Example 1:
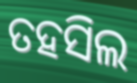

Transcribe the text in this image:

ତହସିଲ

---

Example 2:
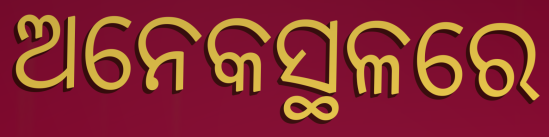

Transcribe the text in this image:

ଅନେକସ୍ଥଳରେ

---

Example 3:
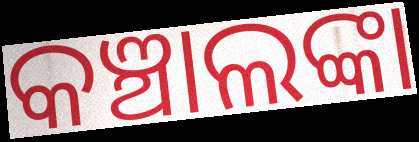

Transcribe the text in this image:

କଞ୍ଚାଲଙ୍କା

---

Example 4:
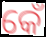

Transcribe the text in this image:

କେଁ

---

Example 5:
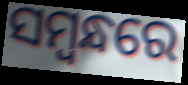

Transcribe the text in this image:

ସମ୍ବନ୍ଧରେ